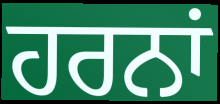
ਹਰਨਾਂ